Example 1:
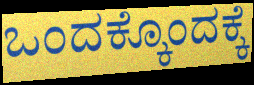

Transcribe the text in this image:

ಒಂದಕ್ಕೊಂದಕ್ಕೆ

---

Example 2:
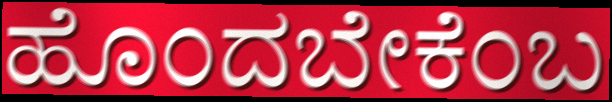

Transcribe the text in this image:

ಹೊಂದಬೇಕೆಂಬ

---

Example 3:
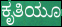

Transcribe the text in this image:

ಕೃತಿಯೂ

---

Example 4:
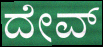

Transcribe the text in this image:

ದೇವ್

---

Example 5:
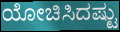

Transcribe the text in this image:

ಯೋಚಿಸಿದಷ್ಟು